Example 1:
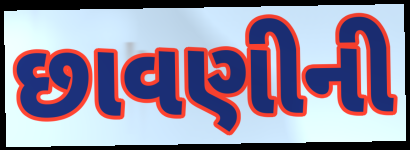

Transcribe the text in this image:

છાવણીની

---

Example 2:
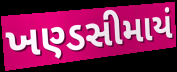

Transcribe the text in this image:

ખણ્ડસીમાયં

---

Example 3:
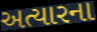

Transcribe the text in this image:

અત્યારના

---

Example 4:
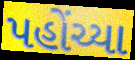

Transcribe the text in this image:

પહોંચ્યા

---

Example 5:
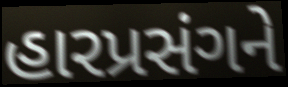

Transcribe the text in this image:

હારપ્રસંગને